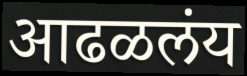
आढळलंय